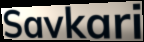
Savkari